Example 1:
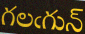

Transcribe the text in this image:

గలఁగున్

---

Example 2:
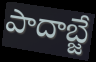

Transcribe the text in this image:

పాదాబ్జే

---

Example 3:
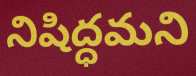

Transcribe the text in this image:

నిషిద్ధమని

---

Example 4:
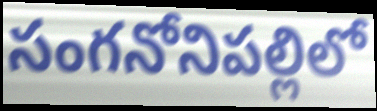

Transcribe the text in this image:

సంగనోనిపల్లిలో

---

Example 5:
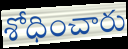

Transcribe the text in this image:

శోధించారు